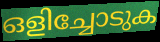
ഒളിച്ചോടുക